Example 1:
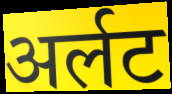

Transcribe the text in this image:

अर्लट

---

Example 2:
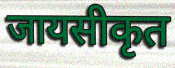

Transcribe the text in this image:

जायसीकृत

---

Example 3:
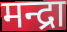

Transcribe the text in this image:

मन्द्रा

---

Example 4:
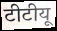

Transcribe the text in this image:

टीटीयू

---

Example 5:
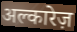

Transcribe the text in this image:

अल्कारेज़